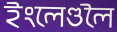
ইংলেণ্ডলৈ